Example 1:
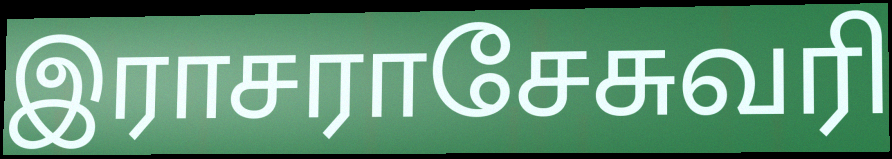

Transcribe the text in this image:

இராசராசேசுவரி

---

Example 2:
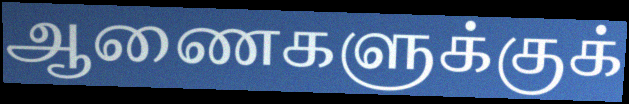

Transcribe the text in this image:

ஆணைகளுக்குக்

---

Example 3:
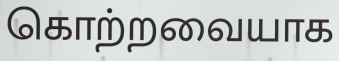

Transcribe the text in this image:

கொற்றவையாக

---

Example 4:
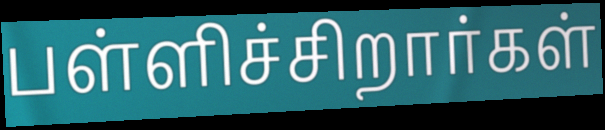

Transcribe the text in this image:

பள்ளிச்சிறார்கள்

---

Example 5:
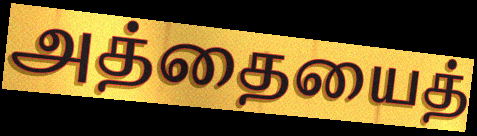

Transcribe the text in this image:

அத்தையைத்